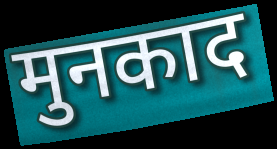
मुनकाद